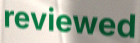
reviewed